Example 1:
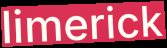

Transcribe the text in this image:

limerick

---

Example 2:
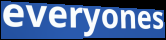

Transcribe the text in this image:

everyones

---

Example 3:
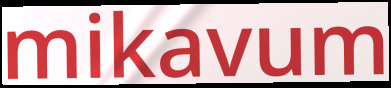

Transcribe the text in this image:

mikavum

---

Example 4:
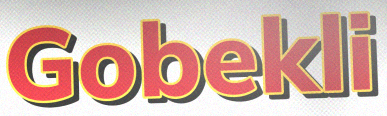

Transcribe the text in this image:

Gobekli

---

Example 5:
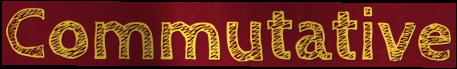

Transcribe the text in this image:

Commutative